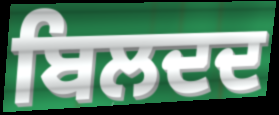
ਬਿਲਦਦ